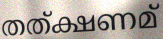
തത്ക്ഷണമ്